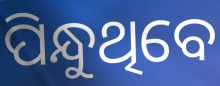
ପିନ୍ଧୁଥିବେ